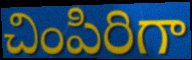
చింపిరిగా